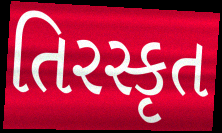
તિરસ્કૃત